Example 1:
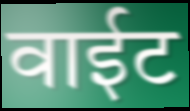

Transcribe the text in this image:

वाईट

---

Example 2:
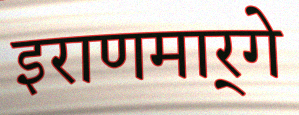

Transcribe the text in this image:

इराणमार्गे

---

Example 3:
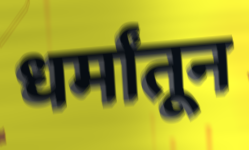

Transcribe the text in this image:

धर्मांतून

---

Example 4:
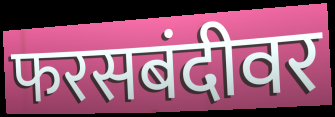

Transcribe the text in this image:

फरसबंदीवर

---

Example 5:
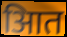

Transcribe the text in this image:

आित